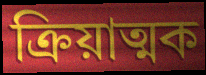
ক্ৰিয়াত্মক